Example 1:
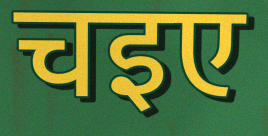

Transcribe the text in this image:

चइए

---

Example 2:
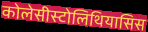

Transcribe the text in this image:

कोलेसीस्टोलिथियासिस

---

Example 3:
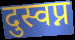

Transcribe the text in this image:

दुस्वप्न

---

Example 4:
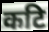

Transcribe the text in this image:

कटि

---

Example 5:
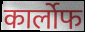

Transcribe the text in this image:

कार्लोफ